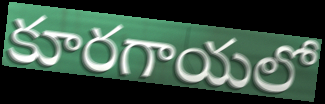
కూరగాయలో